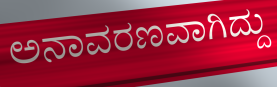
ಅನಾವರಣವಾಗಿದ್ದು